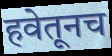
हवेतूनच